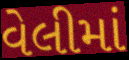
વેલીમાં